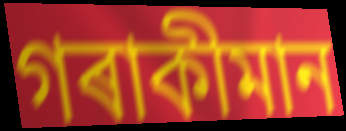
গৰাকীমান